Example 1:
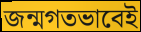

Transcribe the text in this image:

জন্মগতভাবেই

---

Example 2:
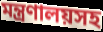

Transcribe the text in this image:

মন্ত্রণালয়সহ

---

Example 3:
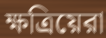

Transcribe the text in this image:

ক্ষত্রিয়েরা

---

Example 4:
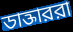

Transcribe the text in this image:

ডাক্তাররা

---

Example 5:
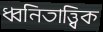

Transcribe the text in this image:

ধ্বনিতাত্ত্বিক